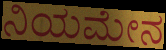
ನಿಯಮೇನ